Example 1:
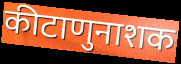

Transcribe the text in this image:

कीटाणुनाशक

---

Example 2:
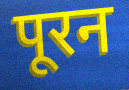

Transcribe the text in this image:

पूरन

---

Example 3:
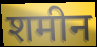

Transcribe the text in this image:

शमीन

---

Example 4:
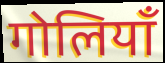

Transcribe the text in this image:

गोलियाँ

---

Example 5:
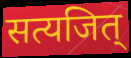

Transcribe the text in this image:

सत्यजित्